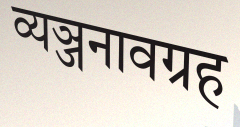
व्यञ्जनावग्रह